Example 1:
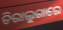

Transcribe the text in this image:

ଚିରାଲୁଗାରେ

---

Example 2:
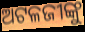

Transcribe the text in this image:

ଅଟଳଜୀଙ୍କୁ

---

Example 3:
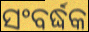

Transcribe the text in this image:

ସଂବର୍ଦ୍ଧକ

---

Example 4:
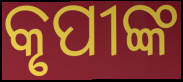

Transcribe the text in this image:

କୃପୀଙ୍କ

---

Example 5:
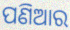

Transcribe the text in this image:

ପଣିଆର